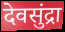
देवसुंद्रा